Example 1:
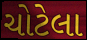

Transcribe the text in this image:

ચોટેલા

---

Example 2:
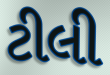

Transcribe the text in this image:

ટીલી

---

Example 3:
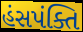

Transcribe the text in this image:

હંસપંક્તિ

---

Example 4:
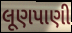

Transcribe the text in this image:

લૂણપાણી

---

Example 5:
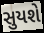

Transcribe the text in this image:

સુયશે